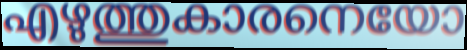
എഴുത്തുകാരനെയോ